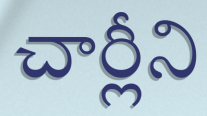
చార్లీని